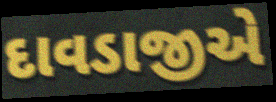
દાવડાજીએ